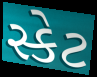
સ્કેટ